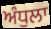
ਅੰਧੁਲਾ